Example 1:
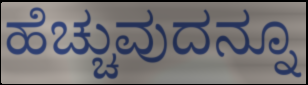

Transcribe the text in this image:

ಹೆಚ್ಚುವುದನ್ನೂ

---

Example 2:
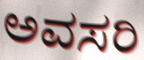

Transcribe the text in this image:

ಅವಸರಿ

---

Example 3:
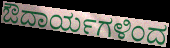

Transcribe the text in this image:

ಔದಾರ್ಯಗಳಿಂದ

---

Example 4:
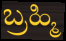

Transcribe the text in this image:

ಬ್ರಹ್ಮಿ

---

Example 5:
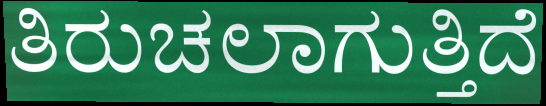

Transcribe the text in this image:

ತಿರುಚಲಾಗುತ್ತಿದೆ